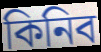
কিনিব